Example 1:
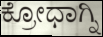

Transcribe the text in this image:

ಕ್ರೋಧಾಗ್ನಿ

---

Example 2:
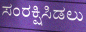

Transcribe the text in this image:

ಸಂರಕ್ಷಿಸಿಡಲು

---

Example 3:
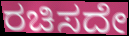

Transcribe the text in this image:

ರಚಿಸದೇ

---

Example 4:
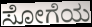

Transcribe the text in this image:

ಸೋಗೆಯ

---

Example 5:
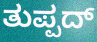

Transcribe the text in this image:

ತುಪ್ಪದ್